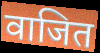
वाजित